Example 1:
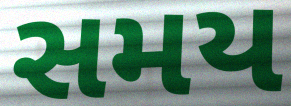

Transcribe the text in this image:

સમય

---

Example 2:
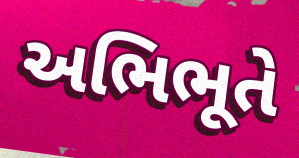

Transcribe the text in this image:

અભિભૂતે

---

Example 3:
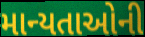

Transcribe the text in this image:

માન્યતાઓની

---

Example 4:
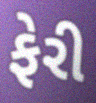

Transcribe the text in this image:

ફેરી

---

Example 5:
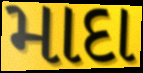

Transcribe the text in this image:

માદા